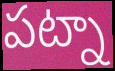
పట్నా